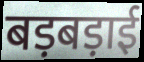
बड़बड़ाई